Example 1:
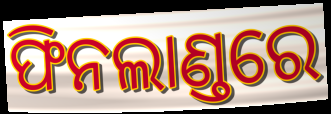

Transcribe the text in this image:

ଫିନଲାଣ୍ଡରେ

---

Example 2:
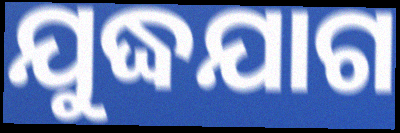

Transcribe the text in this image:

ଯୁଦ୍ଧଯାଗ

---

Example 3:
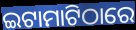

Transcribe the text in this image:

ଇଟାମାଟିଠାରେ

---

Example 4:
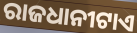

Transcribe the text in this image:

ରାଜଧାନୀଟାଏ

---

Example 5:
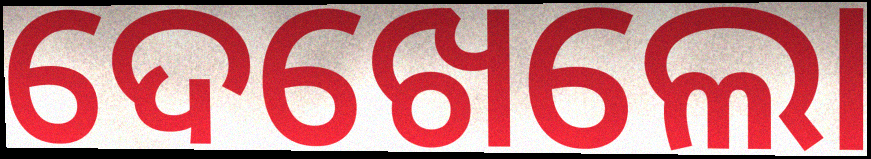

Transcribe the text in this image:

ଦେଖେଲୋ